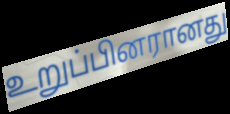
உறுப்பினரானது